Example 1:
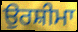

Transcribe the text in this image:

ਉਰਸ਼ੀਮਾ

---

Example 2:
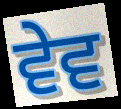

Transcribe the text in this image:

ਵੇਵ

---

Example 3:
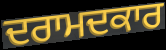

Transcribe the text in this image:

ਦਰਾਮਦਕਾਰ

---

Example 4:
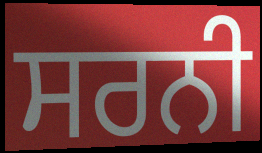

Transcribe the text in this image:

ਸਰਨੀ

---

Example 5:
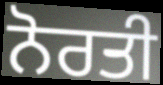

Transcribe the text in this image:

ਨੋਰਤੀ